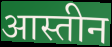
आस्तीन